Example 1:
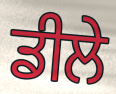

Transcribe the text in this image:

ਡੀਲੇ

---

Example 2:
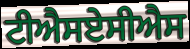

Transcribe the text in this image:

ਟੀਐਸਏਸੀਐਸ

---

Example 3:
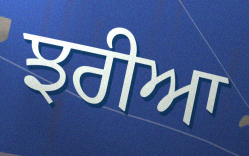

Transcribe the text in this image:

ਝਰੀਆ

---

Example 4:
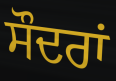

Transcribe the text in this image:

ਸੌਦਰਾਂ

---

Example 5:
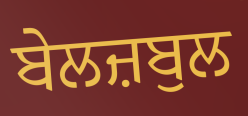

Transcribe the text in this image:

ਬੇਲਜ਼ਬੁਲ